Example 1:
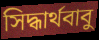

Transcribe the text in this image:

সিদ্ধার্থবাবু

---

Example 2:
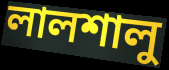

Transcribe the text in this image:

লালশালু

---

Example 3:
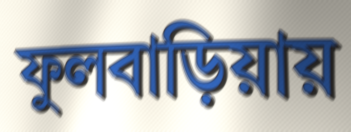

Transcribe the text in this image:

ফুলবাড়িয়ায়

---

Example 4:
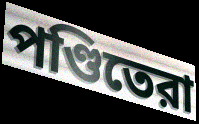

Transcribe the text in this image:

পণ্ডিতেরা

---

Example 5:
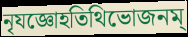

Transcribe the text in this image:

নৃযজ্ঞোহতিথিভোজনম্